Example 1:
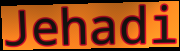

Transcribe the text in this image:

Jehadi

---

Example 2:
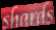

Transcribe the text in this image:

shards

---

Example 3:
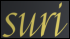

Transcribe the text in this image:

suri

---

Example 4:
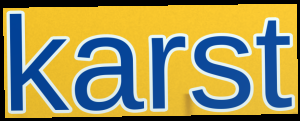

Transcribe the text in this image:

karst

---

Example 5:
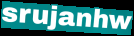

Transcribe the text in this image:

srujanhw